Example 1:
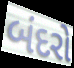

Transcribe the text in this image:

બંદરો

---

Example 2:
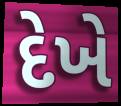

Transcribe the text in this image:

દેખે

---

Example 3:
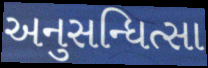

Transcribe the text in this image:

અનુસન્ધિત્સા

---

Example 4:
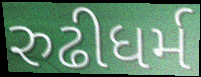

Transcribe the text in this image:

રુઢીધર્મ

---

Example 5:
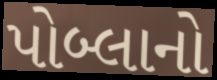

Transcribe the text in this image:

પોબ્લાનો